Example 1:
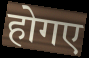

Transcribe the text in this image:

होगए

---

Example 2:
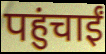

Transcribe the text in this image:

पहुंचाईं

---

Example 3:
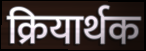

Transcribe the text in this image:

क्रियार्थक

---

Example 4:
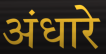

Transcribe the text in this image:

अंधारे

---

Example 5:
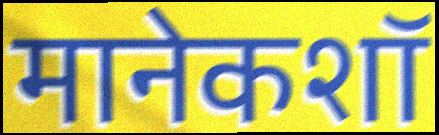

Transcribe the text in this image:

मानेकशॉ